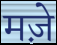
मज़े